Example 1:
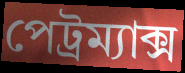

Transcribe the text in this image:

পেট্রম্যাক্স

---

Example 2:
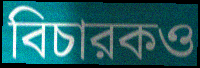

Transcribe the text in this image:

বিচারকও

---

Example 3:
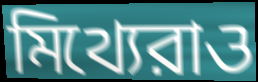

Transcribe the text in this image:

মিথ্যেরাও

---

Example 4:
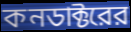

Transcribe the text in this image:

কনডাক্টরের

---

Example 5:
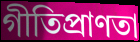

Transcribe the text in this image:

গীতিপ্রাণতা